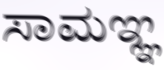
ಸಾಮಞ್ಞ